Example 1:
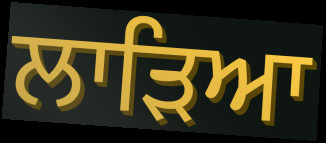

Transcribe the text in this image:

ਲਾੜਿਆ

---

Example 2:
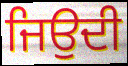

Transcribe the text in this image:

ਜਿਉਦੀ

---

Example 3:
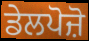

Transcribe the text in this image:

ਡੇਲਪੋਜ਼ੋ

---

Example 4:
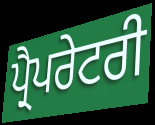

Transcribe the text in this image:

ਪ੍ਰੈਪਰੇਟਰੀ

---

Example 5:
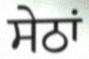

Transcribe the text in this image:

ਸੇਠਾਂ